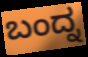
ಬಂದ್ನ